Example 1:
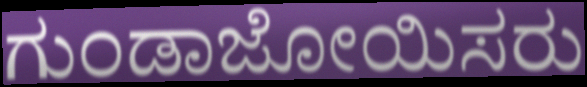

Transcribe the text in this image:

ಗುಂಡಾಜೋಯಿಸರು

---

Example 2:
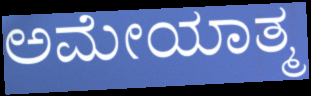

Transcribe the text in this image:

ಅಮೇಯಾತ್ಮ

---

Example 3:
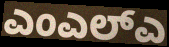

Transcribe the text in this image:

ಎಂಎಲ್ಎ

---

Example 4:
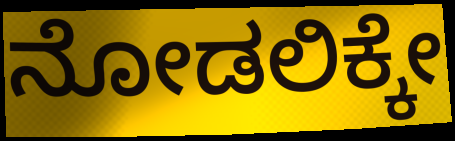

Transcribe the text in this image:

ನೋಡಲಿಕ್ಕೇ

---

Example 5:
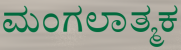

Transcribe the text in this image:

ಮಂಗಲಾತ್ಮಕ